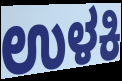
ಉಳಕಿ